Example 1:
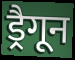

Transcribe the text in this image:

ड्रैगून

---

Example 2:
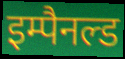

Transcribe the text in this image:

इम्पैनल्ड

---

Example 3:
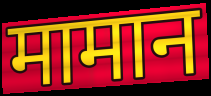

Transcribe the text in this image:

मामान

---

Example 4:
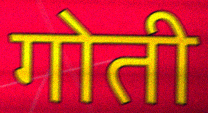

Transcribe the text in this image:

गोती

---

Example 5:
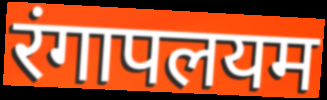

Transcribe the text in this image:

रंगापलयम